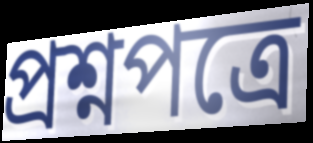
প্রশ্নপত্রে